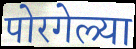
पोरगेल्या